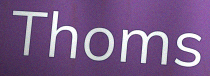
Thoms